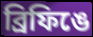
ব্রিফিঙে